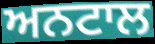
ਅਨਟਾਲ